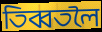
তিব্বতলৈ